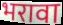
भरावा